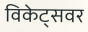
विकेट्सवर